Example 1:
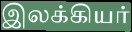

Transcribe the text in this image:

இலக்கியர்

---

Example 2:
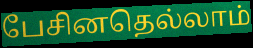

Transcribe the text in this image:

பேசினதெல்லாம்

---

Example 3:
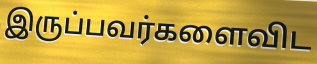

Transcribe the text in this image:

இருப்பவர்களைவிட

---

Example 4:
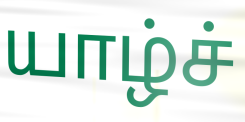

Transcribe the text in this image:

யாழ்ச்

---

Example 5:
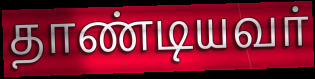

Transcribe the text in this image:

தாண்டியவர்